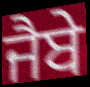
ਜੈਬੇ